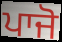
ਪਾਜੋ